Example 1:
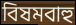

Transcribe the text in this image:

বিষমবাহু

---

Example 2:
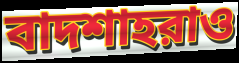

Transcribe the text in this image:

বাদশাহরাও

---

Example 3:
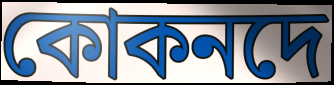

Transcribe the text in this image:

কোকনদে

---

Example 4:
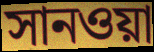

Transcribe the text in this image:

সানওয়া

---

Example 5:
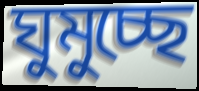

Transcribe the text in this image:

ঘুমুচ্ছে